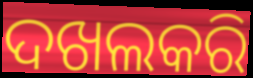
ଦଖଲକରି